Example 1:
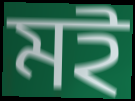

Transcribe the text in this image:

মই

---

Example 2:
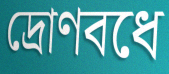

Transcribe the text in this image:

দ্রোণবধে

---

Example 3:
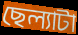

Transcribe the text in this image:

ছেল্যাটা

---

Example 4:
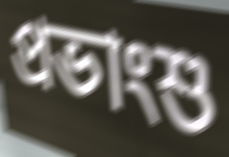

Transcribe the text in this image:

প্রভাংশু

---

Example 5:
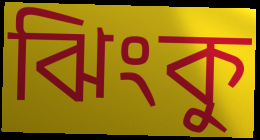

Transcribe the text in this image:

ঝিংকু